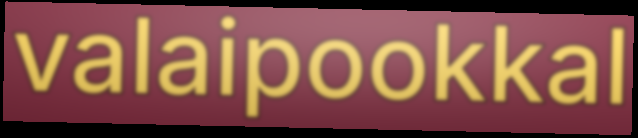
valaipookkal